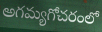
అగమ్యగోచరంలో